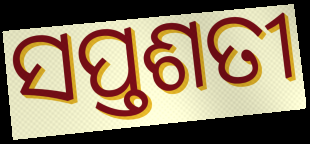
ସପ୍ତଶତୀ